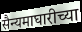
सैन्यमाघारीच्या